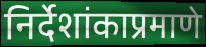
निर्देशांकाप्रमाणे